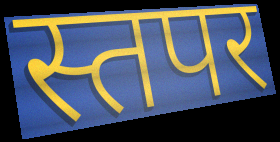
स्तपर